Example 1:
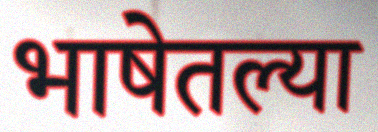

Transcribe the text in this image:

भाषेतल्या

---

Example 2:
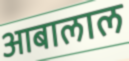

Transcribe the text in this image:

आबालाल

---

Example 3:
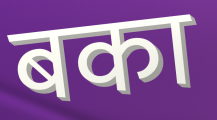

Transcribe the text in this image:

बका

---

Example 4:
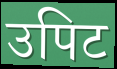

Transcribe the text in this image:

उपिट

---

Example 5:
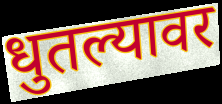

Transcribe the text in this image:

धुतल्यावर